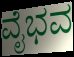
ವೈಭವ